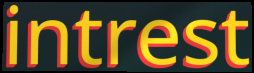
intrest